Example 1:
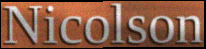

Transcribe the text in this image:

Nicolson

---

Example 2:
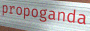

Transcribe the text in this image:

propoganda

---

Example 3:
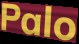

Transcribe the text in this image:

Palo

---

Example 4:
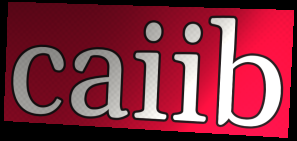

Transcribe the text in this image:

caiib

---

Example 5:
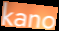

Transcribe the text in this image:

kano